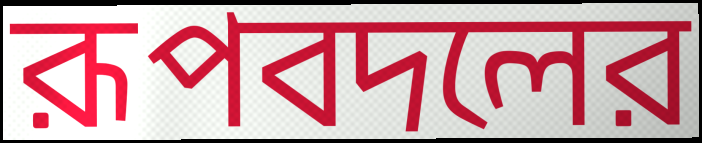
রূপবদলের